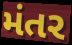
મંતર